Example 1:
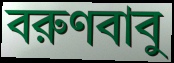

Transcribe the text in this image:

বরুণবাবু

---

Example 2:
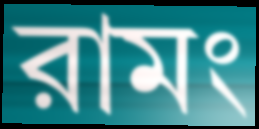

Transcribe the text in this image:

রামং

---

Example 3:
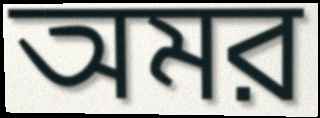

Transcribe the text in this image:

অমর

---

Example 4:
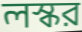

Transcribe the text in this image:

লস্কর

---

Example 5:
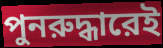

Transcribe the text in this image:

পুনরুদ্ধারেই